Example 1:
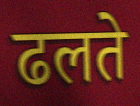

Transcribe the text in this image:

ढलते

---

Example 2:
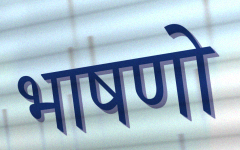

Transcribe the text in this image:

भाषणो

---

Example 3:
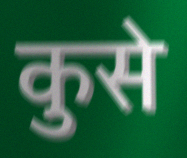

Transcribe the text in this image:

कुसे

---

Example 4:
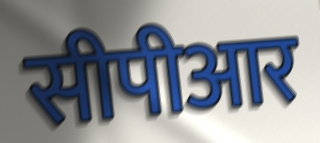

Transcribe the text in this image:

सीपीआर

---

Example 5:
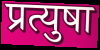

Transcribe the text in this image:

प्रत्युषा